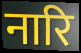
नारि